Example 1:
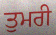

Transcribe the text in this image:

ਤੁਮਰੀ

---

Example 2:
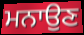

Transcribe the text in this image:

ਮਨਾਉਣ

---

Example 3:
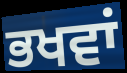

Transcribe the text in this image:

ਭਖਵਾਂ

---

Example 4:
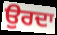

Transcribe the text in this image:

ਉਰਦਾ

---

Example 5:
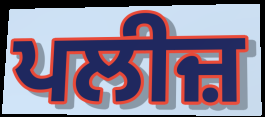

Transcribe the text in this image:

ਪਲੀਜ਼